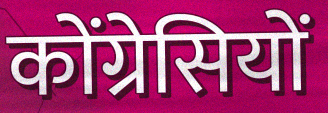
कोंग्रेसियों